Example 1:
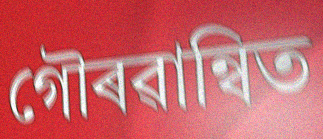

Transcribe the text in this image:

গৌৰৱান্বিত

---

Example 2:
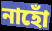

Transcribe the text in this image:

নাহোঁ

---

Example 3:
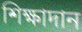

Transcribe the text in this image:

শিক্ষাদান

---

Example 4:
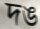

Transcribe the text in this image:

দঙ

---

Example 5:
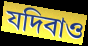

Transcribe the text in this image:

যদিবাও